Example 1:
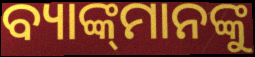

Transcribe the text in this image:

ବ୍ୟାଙ୍କ୍‌ମାନଙ୍କୁ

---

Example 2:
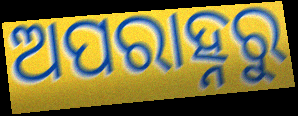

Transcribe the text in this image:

ଅପରାହ୍ନରୁ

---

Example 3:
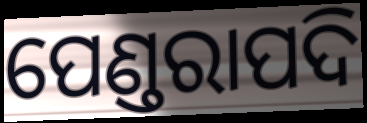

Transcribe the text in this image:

ପେଣ୍ଡରାପଦି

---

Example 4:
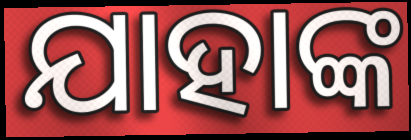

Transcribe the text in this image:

ଯାହାଙ୍କ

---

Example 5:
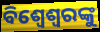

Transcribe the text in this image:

ବିଶ୍ୱେଶ୍ୱରଙ୍କୁ